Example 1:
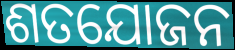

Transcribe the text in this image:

ଶତଯୋଜନ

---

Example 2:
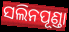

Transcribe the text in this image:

ସଲିନପୂଣ୍ଡା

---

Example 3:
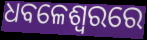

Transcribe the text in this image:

ଧବଳେଶ୍ଵରରେ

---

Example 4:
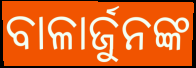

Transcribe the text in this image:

ବାଳାର୍ଜୁନଙ୍କ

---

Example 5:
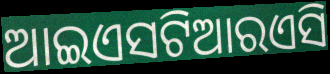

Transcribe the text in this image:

ଆଇଏସଟିଆରଏସି